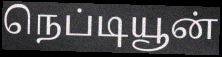
நெப்டியூன்